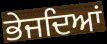
ਭੇਜਦਿਆਂ